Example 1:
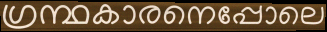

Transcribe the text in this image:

ഗ്രന്ഥകാരനെപ്പോലെ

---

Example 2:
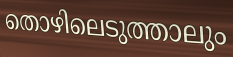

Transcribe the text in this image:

തൊഴിലെടുത്താലും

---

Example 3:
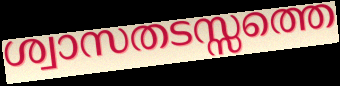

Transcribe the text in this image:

ശ്വാസതടസ്സത്തെ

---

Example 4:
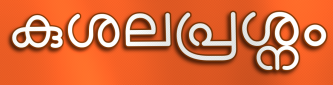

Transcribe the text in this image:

കുശലപ്രശ്നം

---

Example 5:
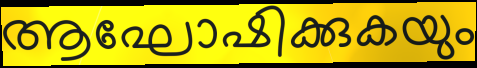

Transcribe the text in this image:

ആഘോഷിക്കുകയും